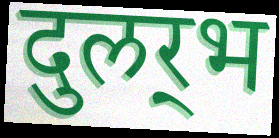
दुलर्भ